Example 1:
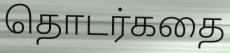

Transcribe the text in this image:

தொடர்கதை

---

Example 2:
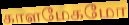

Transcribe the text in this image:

காளமேகமோ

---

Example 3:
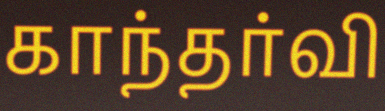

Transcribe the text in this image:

காந்தர்வி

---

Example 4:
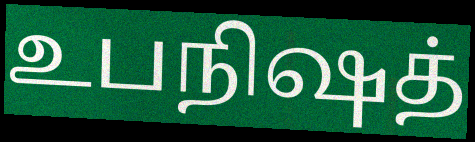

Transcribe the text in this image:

உபநிஷத்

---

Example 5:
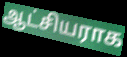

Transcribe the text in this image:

ஆட்சியராக